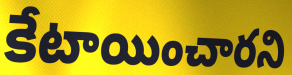
కేటాయించారని